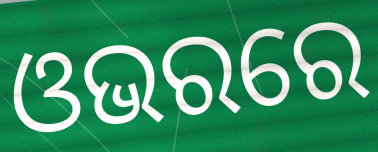
ଓଭରରେ